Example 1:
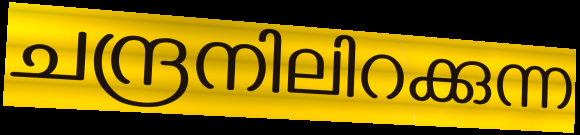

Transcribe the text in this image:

ചന്ദ്രനിലിറക്കുന്ന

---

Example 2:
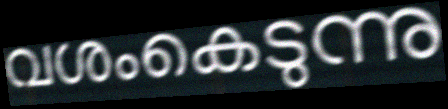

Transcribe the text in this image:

വശംകെടുന്നു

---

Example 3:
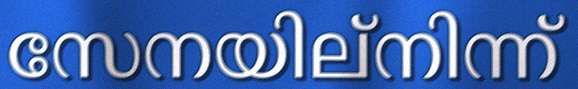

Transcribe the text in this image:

സേനയില്നിന്ന്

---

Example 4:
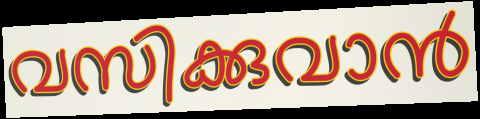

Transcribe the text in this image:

വസിക്കുവാൻ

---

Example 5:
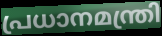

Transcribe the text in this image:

പ്രധാനമന്ത്രി